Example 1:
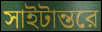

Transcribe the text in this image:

সাইটান্তরে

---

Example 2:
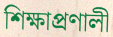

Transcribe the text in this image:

শিক্ষাপ্রণালী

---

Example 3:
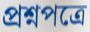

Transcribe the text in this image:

প্রশ্নপত্রে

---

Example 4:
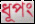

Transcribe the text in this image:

ধূপং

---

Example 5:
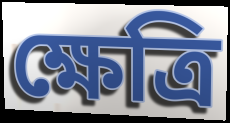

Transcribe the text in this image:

ক্ষেত্রি